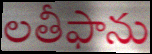
లతీఫాను